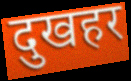
दुखहर